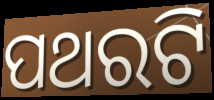
ପଥରଟି